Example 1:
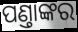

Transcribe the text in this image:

ପଣ୍ତାଙ୍କର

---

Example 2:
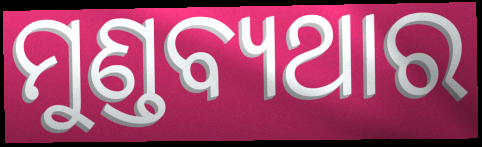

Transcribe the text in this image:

ମୁଣ୍ଡବ୍ୟଥାର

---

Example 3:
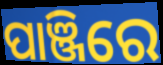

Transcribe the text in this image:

ପାଞ୍ଜିରେ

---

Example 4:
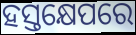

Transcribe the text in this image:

ହସ୍ତକ୍ଷେପରେ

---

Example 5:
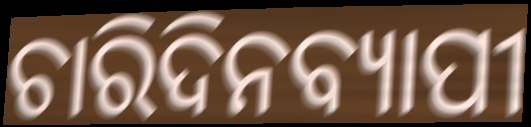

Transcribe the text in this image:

ଚାରିଦିନବ୍ୟାପୀ